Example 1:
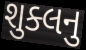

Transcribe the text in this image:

શુક્લનુ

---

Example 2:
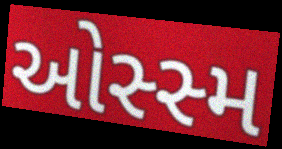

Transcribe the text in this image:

ઓસ્સ્મ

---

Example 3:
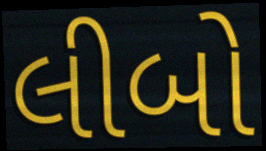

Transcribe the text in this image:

લીબો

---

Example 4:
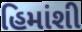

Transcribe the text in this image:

હિમાંશી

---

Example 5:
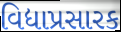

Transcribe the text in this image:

વિદ્યાપ્રસારક